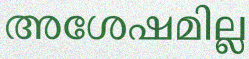
അശേഷമില്ല